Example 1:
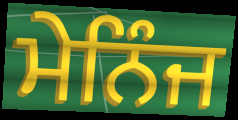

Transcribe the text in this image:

ਮੇਨਿੰਜ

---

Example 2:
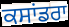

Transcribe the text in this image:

ਕਸਾਂਡਰਾ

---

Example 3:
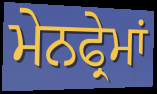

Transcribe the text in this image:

ਮੇਨਫ੍ਰੇਮਾਂ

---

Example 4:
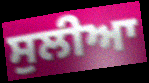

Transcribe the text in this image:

ਸੁਲੀਆ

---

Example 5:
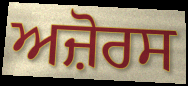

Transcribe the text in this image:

ਅਜ਼ੋਰਸ